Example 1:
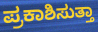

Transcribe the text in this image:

ಪ್ರಕಾಶಿಸುತ್ತಾ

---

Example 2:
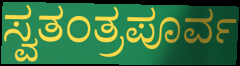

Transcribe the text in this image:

ಸ್ವತಂತ್ರಪೂರ್ವ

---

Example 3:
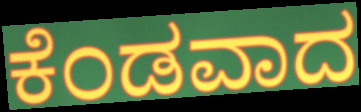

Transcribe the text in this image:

ಕೆಂಡವಾದ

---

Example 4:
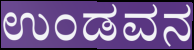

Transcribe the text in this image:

ಉಂಡವನ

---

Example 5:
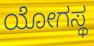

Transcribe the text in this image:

ಯೋಗಸ್ಥ